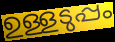
ഉള്ളടുപ്പം